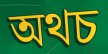
অথচ